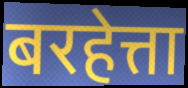
बरहेत्ता